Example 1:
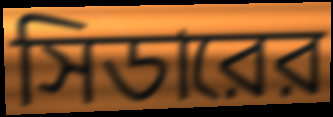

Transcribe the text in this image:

সিডারের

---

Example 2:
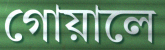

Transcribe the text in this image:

গোয়ালে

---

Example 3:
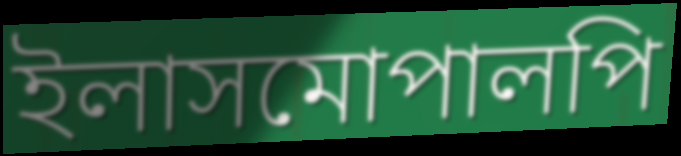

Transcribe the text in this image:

ইলাসমোপালপি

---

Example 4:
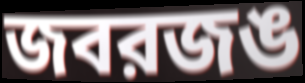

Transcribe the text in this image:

জবরজঙ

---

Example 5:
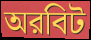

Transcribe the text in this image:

অরবিট